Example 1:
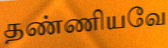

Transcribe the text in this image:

தண்ணியவே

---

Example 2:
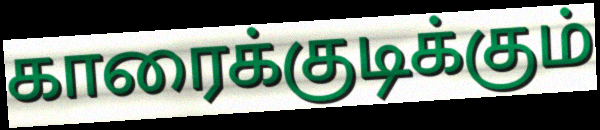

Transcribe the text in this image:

காரைக்குடிக்கும்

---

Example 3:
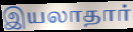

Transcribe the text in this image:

இயலாதார்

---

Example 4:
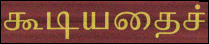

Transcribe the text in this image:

கூடியதைச்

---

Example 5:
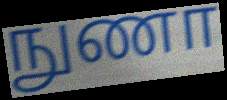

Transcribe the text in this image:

நுணா